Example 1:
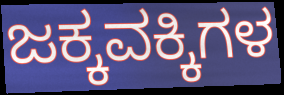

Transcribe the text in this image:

ಜಕ್ಕವಕ್ಕಿಗಳ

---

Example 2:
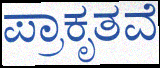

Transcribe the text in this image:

ಪ್ರಾಕೃತವೆ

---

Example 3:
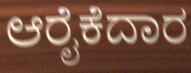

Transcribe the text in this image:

ಆರೈಕೆದಾರ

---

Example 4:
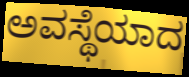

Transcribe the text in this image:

ಅವಸ್ಥೆಯಾದ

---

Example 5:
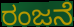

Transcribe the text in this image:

ರಂಜನೆ